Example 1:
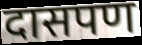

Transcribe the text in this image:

दासपण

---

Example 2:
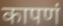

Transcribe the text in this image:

कापणं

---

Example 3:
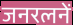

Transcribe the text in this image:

जनरलनें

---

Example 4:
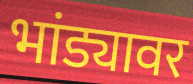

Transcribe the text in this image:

भांड्यावर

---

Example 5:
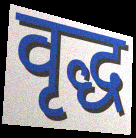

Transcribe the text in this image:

वृद्ध